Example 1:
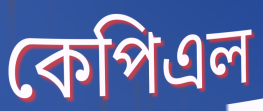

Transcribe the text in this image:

কেপিএল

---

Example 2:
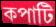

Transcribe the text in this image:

কপাটি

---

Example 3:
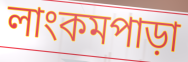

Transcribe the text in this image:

লাংকমপাড়া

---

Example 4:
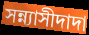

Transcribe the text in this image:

সন্ন্যাসীদাদা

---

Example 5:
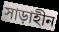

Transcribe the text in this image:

সাড়াহীন